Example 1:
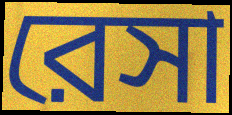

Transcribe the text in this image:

রেসা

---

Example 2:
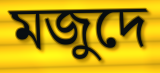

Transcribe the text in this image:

মজুদে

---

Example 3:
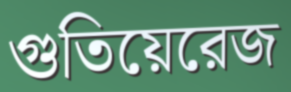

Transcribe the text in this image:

গুতিয়েরেজ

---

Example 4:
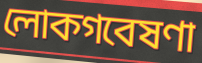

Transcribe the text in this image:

লোকগবেষণা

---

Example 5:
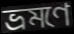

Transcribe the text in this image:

ভ্রমণে